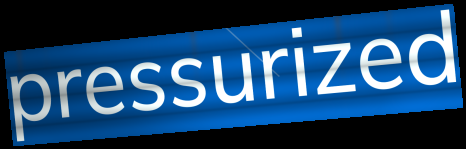
pressurized